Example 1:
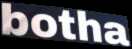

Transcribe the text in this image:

botha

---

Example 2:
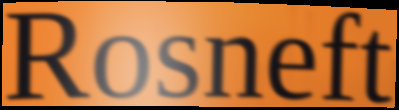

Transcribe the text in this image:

Rosneft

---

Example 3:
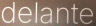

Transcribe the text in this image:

delante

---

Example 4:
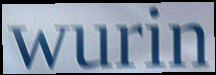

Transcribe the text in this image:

wurin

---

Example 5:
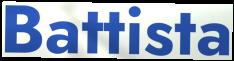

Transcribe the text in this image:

Battista